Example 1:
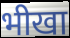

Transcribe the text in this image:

भीखा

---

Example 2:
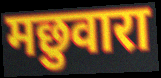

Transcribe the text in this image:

मछुवारा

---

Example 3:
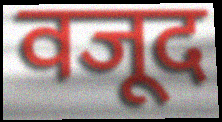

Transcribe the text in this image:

वजूद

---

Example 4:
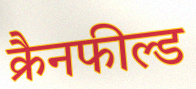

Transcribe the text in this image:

क्रैनफील्ड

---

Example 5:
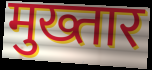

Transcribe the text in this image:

मुख्‍तार